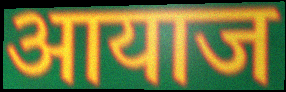
आयाज